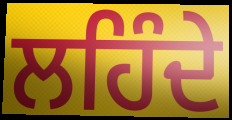
ਲਹਿੰਦੇ